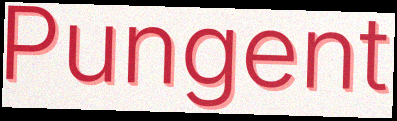
Pungent